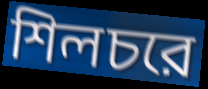
শিলচরে